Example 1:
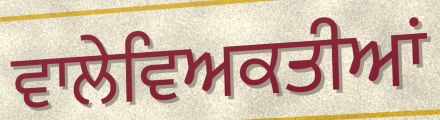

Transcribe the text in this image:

ਵਾਲੇਵਿਅਕਤੀਆਂ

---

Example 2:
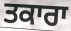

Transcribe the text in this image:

ਤਕਾਰਾ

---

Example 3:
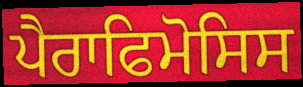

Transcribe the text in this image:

ਪੈਰਾਫਿਮੋਸਿਸ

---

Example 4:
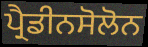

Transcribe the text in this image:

ਪ੍ਰੈਡੀਨਸੋਲੋਨ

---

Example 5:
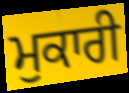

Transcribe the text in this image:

ਮੁਕਾਰੀ